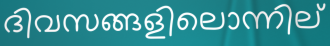
ദിവസങ്ങളിലൊന്നില്